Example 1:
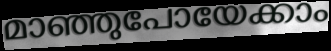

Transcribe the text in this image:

മാഞ്ഞുപോയേക്കാം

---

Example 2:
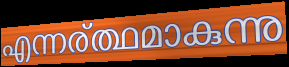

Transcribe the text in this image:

എന്നര്ത്ഥമാകുന്നു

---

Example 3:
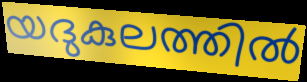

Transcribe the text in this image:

യദുകുലത്തിൽ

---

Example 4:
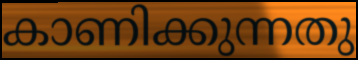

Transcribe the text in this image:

കാണിക്കുന്നതു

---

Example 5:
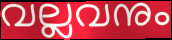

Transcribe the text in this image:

വല്ലവനും